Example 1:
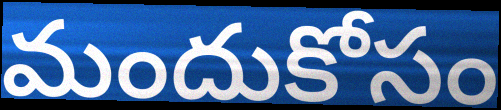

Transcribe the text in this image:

మందుకోసం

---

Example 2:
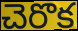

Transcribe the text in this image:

చెరొక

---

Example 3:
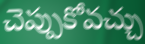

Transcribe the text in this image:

చెప్పుకోవచ్చు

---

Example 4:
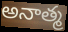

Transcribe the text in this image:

అనాత్మ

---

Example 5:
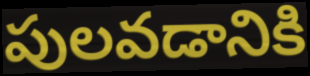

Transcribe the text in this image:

పులవడానికి